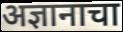
अज्ञानाचा